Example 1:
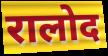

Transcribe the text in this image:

रालोद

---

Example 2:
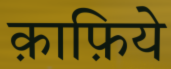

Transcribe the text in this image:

क़ाफ़िये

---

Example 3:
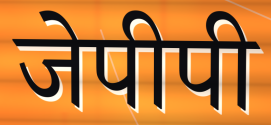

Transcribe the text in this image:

जेपीपी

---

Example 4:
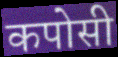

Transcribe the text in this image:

कपोसी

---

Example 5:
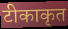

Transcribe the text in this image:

टीकाकृत